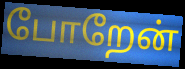
போறேன்